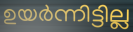
ഉയർന്നിട്ടില്ല